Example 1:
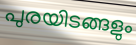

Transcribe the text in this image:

പുരയിടങ്ങളും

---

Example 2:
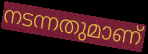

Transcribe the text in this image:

നടന്നതുമാണ്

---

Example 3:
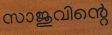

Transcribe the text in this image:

സാജുവിന്റെ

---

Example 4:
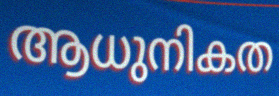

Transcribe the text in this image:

ആധുനികത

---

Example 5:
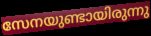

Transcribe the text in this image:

സേനയുണ്ടായിരുന്നു